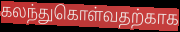
கலந்துகொள்வதற்காக